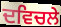
ਦਵਿਚਲੇ